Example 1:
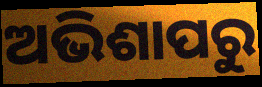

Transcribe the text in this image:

ଅଭିଶାପରୁ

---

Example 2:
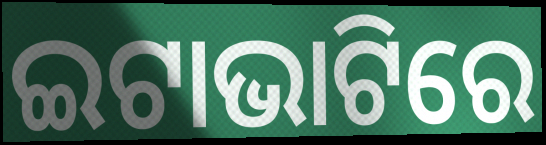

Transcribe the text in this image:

ଇଟାଭାଟିରେ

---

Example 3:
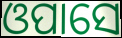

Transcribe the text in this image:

ଓପାସେ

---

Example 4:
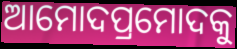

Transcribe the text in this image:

ଆମୋଦପ୍ରମୋଦକୁ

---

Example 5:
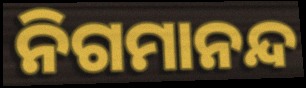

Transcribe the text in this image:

ନିଗମାନନ୍ଦ